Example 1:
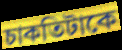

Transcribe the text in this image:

চাকতিটাকে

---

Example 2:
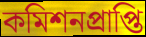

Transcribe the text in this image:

কমিশনপ্রাপ্তি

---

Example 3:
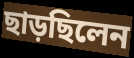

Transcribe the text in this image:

ছাড়ছিলেন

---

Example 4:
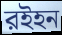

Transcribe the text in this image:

রইহন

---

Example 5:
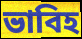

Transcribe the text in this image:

ভাবিহ